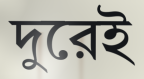
দুরেই